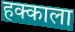
हक्काला